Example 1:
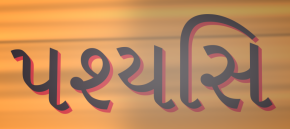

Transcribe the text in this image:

પશ્યસિ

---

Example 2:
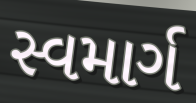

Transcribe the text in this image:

સ્વમાર્ગ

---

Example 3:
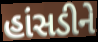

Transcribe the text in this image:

હાંસડીને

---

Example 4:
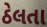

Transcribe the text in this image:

ઠેલતા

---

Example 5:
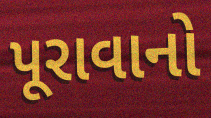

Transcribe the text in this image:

પૂરાવાનો